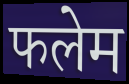
फलेम